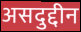
असदुद्दीन